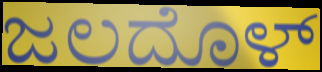
ಜಲದೊಳ್